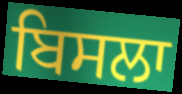
ਬਿਸਲਾ